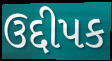
ઉદ્દીપક